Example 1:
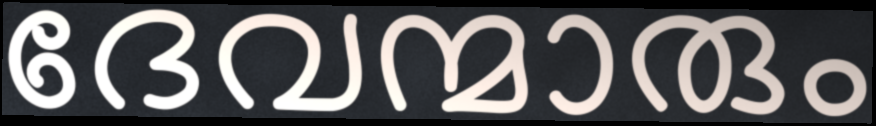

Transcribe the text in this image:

ദേവന്മാരും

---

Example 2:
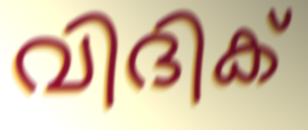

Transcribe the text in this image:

വിദിക്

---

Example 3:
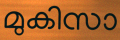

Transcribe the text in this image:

മുകിസാ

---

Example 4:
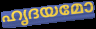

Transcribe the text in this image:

ഹൃദയമോ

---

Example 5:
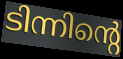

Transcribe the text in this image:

ടിന്നിന്റെ